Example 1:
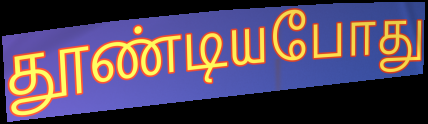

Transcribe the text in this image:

தூண்டியபோது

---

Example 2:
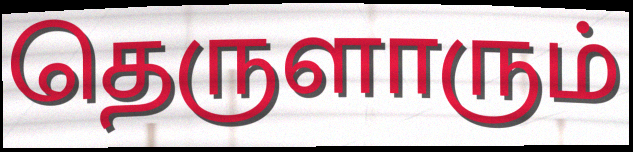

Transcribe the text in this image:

தெருளாரும்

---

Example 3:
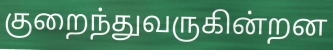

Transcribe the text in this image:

குறைந்துவருகின்றன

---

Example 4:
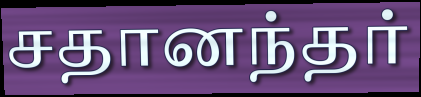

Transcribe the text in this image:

சதானந்தர்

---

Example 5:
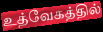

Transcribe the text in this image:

உத்வேகத்தில்